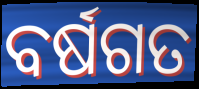
ବର୍ଷଗତ